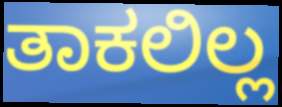
ತಾಕಲಿಲ್ಲ